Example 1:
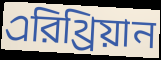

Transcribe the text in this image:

এরিথ্রিয়ান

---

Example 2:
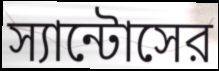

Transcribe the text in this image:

স্যান্টোসের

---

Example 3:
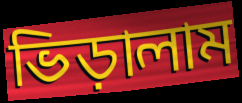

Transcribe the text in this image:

ভিড়ালাম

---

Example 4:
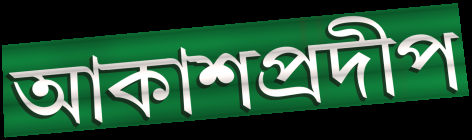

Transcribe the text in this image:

আকাশপ্রদীপ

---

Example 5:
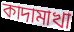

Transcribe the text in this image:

কাদামাখা